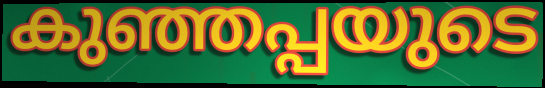
കുഞ്ഞപ്പയുടെ